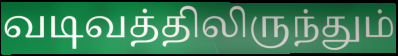
வடிவத்திலிருந்தும்